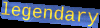
legendary